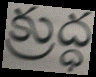
క్రుద్ధ